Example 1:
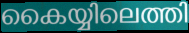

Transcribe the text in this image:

കൈയ്യിലെത്തി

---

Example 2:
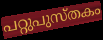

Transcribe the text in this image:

പറ്റുപുസ്തകം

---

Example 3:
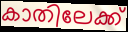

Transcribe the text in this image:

കാതിലേക്ക്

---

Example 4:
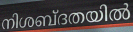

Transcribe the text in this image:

നിശബ്ദതയിൽ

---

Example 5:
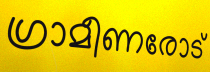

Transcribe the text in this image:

ഗ്രാമീണരോട്